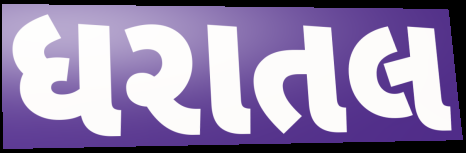
ધરાતલ